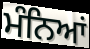
ਮੰਨਿਆਂ